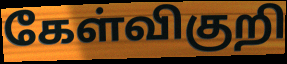
கேள்விகுறி